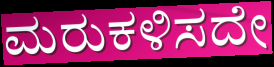
ಮರುಕಳಿಸದೇ